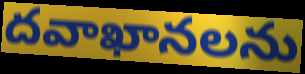
దవాఖానలను